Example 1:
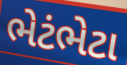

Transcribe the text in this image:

ભેટંભેટા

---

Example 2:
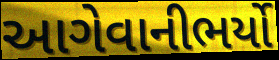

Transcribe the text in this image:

આગેવાનીભર્યો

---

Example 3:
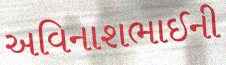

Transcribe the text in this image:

અવિનાશભાઈની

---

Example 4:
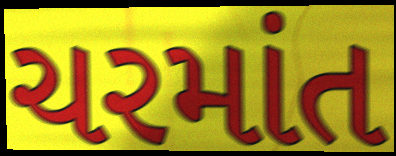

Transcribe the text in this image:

ચરમાંત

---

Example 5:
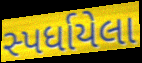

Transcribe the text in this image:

સ્પર્ધાયેલા